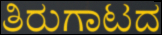
ತಿರುಗಾಟದ